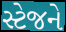
સ્ટેજને